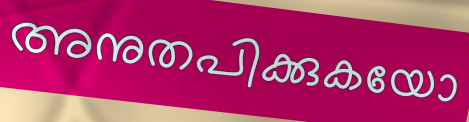
അനുതപിക്കുകയോ